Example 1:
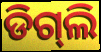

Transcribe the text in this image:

ଡିଗ୍‌ଲି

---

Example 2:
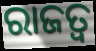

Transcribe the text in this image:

ରାଜତ୍ଵ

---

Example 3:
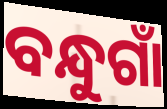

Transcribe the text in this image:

ବନ୍ଧୁଗାଁ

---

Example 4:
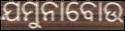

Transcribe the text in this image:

ଯମୁନାବୋଉ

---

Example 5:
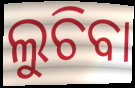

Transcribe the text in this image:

ଲୁଚିବା